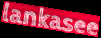
lankasee